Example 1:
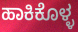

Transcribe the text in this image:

ಹಾಕಿಕೊಳ್ಳ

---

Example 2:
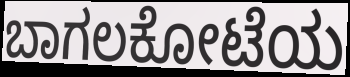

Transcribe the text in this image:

ಬಾಗಲಕೋಟೆಯ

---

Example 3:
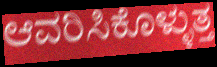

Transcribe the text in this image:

ಆವರಿಸಿಕೊಳ್ಳುತ್ತ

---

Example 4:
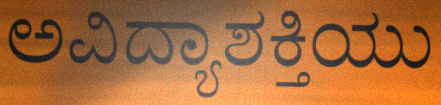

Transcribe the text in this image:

ಅವಿದ್ಯಾಶಕ್ತಿಯು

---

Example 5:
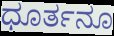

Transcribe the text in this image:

ಧೂರ್ತನೂ